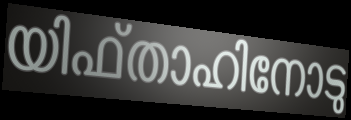
യിഫ്താഹിനോടു